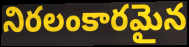
నిరలంకారమైన